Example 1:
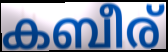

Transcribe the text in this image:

കബീര്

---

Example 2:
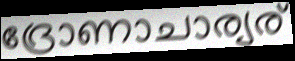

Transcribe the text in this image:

ദ്രോണാചാര്യര്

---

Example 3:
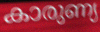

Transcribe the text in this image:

കാരുണ്യ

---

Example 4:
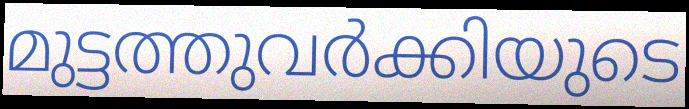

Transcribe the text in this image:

മുട്ടത്തുവർക്കിയുടെ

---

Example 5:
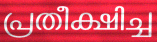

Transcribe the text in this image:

പ്രതീക്ഷിച്ച